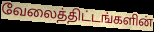
வேலைத்திட்டங்களின்